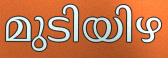
മുടിയിഴ